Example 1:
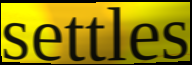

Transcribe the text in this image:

settles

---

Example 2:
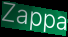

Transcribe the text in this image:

Zappa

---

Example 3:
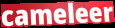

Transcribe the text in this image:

cameleer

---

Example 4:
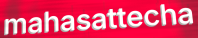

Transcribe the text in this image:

mahasattecha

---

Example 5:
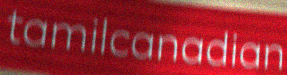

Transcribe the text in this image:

tamilcanadian